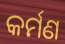
କର୍ମଣ